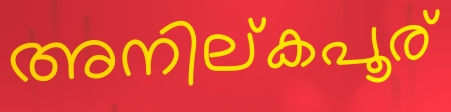
അനില്കപൂര്